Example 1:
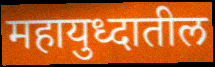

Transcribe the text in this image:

महायुध्दातील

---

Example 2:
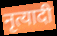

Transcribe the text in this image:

नृत्यादी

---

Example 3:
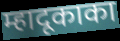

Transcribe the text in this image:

म्हादूकाका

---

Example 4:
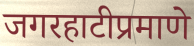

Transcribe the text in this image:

जगरहाटीप्रमाणे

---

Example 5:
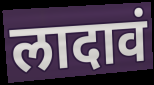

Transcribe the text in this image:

लादावं